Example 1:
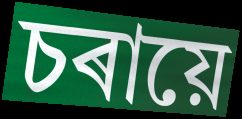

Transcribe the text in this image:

চৰায়ে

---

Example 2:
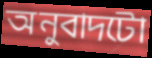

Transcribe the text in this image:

অনুবাদটো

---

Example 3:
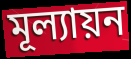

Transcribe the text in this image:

মূল্যায়ন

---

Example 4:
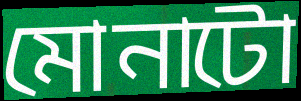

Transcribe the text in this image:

মোনাটো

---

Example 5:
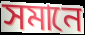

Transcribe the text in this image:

সমানে